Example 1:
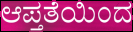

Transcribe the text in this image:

ಆಪ್ತತೆಯಿಂದ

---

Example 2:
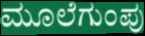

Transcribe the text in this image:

ಮೂಲೆಗುಂಪು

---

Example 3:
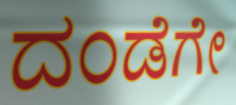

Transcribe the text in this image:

ದಂಡೆಗೇ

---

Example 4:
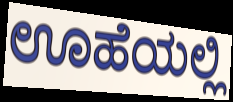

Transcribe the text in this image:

ಊಹೆಯಲ್ಲಿ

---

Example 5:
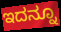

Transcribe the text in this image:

ಇದನ್ನೂ